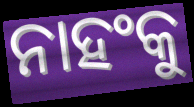
ନାହଂକୁ